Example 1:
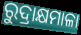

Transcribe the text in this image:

ରୁଦ୍ରାକ୍ଷମାଳା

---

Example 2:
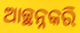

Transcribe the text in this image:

ଆଚ୍ଛନ୍ନକରି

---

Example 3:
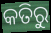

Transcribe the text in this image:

କତିରୁ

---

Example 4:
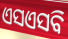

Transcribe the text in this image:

ଏସଏସବି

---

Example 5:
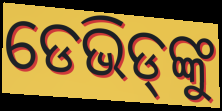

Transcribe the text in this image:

ଡେଭିଡ୍‌ଙ୍କୁ